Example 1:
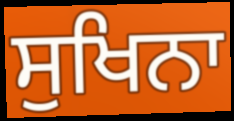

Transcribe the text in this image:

ਸੁਖਿਨਾ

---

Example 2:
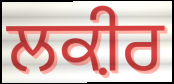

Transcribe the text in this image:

ਲਕ਼ੀਰ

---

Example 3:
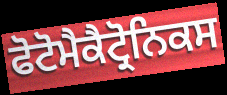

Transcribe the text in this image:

ਫੋਟੋਮੈਕੈਟ੍ਰੋਨਿਕਸ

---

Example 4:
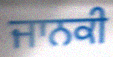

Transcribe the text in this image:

ਜਾਨਕੀ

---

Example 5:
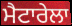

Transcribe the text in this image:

ਮੈਟਾਰੇਲਾ